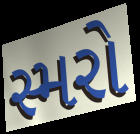
સ્મરો